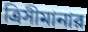
ত্রিসীমানার